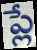
ప్లే